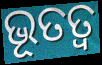
ଭୂତତ୍ୱ